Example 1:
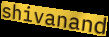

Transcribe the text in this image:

shivanand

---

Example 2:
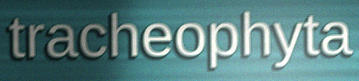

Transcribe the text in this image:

tracheophyta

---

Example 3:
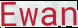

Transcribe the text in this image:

Ewan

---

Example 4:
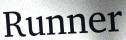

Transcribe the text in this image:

Runner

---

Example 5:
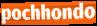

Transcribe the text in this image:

pochhondo